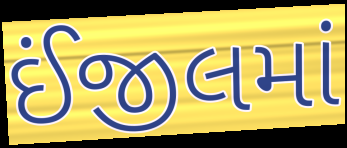
ઈંજીલમાં